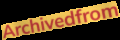
Archivedfrom